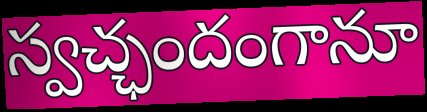
స్వచ్ఛందంగానూ